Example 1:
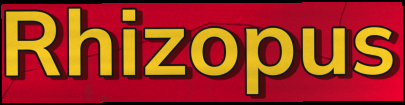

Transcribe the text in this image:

Rhizopus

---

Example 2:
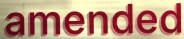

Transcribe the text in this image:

amended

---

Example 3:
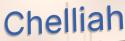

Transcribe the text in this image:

Chelliah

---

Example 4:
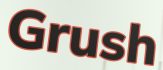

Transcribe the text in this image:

Grush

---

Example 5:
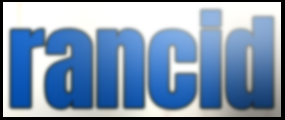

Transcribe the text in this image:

rancid